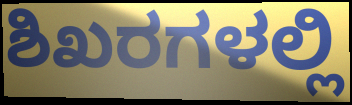
ಶಿಖರಗಳಲ್ಲಿ